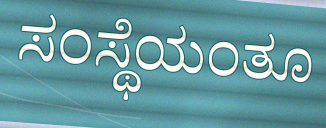
ಸಂಸ್ಥೆಯಂತೂ